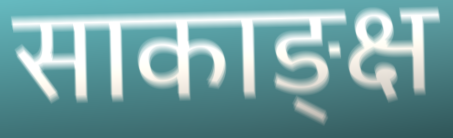
साकाङ्क्ष